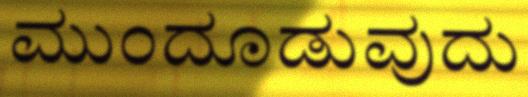
ಮುಂದೂಡುವುದು